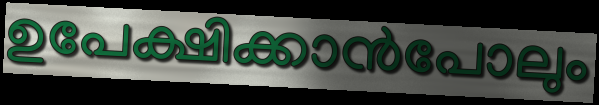
ഉപേക്ഷിക്കാൻപോലും